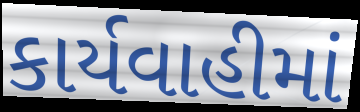
કાર્યવાહીમાં